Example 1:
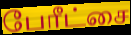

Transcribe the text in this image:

பேரீட்சை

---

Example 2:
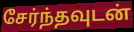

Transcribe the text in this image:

சேர்ந்தவுடன்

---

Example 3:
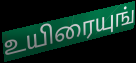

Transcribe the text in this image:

உயிரையுங்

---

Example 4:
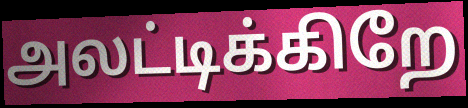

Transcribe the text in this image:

அலட்டிக்கிறே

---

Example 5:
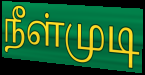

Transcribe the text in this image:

நீள்முடி